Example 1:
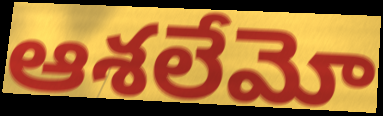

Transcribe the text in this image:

ఆశలేమో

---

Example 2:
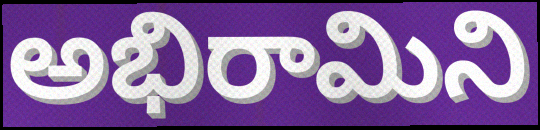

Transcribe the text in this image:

అభిరామిని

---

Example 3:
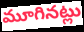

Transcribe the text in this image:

మూగినట్లు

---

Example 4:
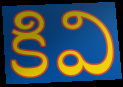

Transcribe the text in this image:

కివి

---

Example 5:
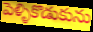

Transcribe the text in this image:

పెళ్ళికొడుకును